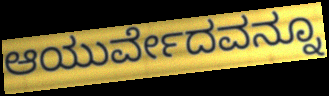
ಆಯುರ್ವೇದವನ್ನೂ